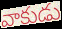
వాకుడు